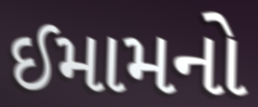
ઈમામનો